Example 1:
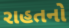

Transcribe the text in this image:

રાહતનો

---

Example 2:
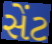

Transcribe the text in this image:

સેંટ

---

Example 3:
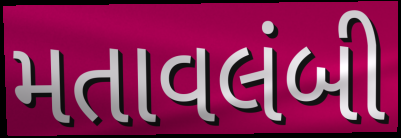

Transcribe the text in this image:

મતાવલંબી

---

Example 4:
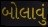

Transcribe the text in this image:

બોલાવું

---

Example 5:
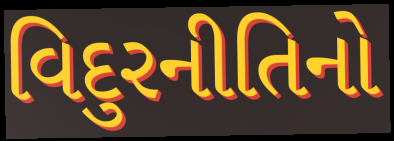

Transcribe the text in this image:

વિદુરનીતિનો